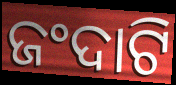
ଜଂଦାଟି